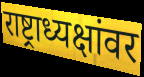
राष्ट्राध्यक्षांवर